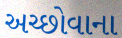
અચ્છોવાના